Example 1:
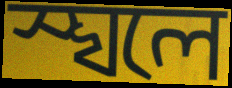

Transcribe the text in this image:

স্খলে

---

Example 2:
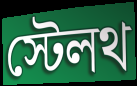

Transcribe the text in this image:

স্টেলথ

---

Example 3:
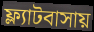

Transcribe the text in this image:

ফ্ল্যাটবাসায়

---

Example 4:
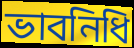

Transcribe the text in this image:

ভাবনিধি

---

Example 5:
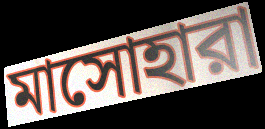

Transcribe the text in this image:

মাসোহারা